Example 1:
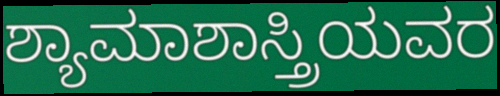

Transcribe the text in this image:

ಶ್ಯಾಮಾಶಾಸ್ತ್ರಿಯವರ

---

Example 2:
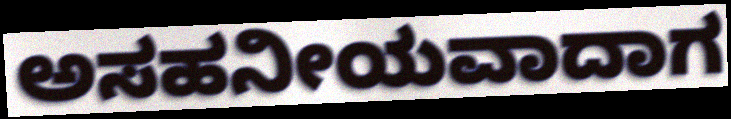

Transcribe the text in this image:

ಅಸಹನೀಯವಾದಾಗ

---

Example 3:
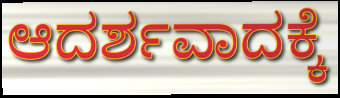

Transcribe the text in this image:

ಆದರ್ಶವಾದಕ್ಕೆ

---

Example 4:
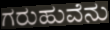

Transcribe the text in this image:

ಗರುಹುವೆನು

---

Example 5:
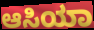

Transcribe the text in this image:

ಆಸಿಯಾ